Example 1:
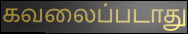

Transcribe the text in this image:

கவலைப்படாது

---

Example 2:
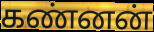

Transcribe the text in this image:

கண்னன்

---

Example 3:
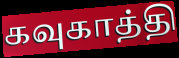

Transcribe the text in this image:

கவுகாத்தி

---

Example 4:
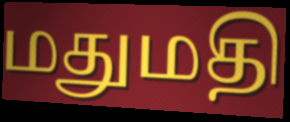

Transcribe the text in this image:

மதுமதி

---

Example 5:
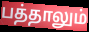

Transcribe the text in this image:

பத்தாலும்